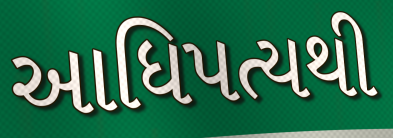
આધિપત્યથી